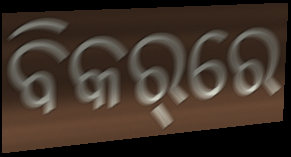
ବିକର୍‌ରେ